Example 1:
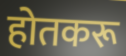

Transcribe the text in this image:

होतकरू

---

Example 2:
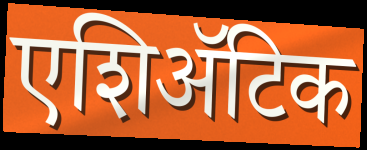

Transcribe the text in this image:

एशिॲटिक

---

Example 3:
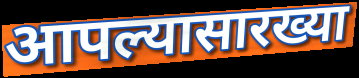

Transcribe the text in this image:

आपल्यासारख्या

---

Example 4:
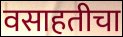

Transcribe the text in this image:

वसाहतीचा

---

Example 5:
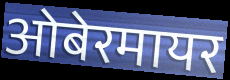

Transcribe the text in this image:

ओबेरमायर